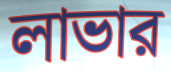
লাভার